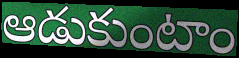
ఆడుకుంటాం